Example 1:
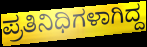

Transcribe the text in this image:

ಪ್ರತಿನಿಧಿಗಳಾಗಿದ್ದ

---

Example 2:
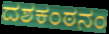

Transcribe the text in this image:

ದಶಕಂಠನಂ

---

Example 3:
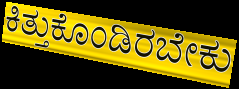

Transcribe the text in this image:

ಕಿತ್ತುಕೊಂಡಿರಬೇಕು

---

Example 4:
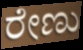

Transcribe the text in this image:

ರೇಣು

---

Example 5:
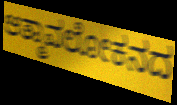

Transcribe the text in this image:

ಆತ್ಮಾವಲೋಕನದ